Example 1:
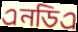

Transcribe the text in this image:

এনডিএ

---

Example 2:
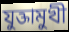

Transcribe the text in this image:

যুক্তামুখী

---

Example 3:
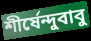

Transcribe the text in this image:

শীর্ষেন্দুবাবু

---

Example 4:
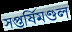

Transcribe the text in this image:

সপ্তর্ষিমণ্ডল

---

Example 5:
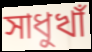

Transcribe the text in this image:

সাধুখাঁ